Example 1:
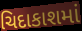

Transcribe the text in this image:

ચિદાકાશમાં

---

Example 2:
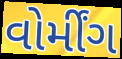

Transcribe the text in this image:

વોર્મીંગ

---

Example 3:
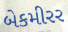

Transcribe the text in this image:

બેકમીરર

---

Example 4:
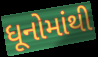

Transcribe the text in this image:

ધૂનોમાંથી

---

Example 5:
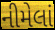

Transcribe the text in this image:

નીમેલાં